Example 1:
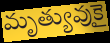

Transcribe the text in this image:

మృత్యువుకై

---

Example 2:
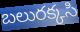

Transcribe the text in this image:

బలురక్కసి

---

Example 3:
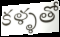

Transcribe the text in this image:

కళ్ళతో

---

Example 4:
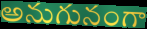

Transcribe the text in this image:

అనుగునంగా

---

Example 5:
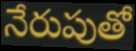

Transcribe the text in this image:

నేరుపుతో